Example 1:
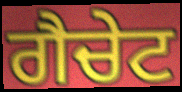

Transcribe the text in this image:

ਗੈਚੇਟ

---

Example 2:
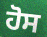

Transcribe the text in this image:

ਹੋਸ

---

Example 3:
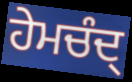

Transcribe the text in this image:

ਹੇਮਚੰਦ੍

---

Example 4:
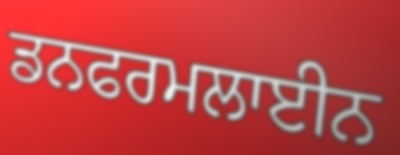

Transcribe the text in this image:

ਡਨਫਰਮਲਾਈਨ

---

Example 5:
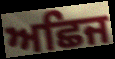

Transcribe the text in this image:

ਅਛਿਜ